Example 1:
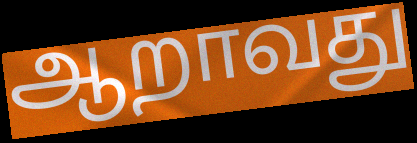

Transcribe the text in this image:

ஆறாவது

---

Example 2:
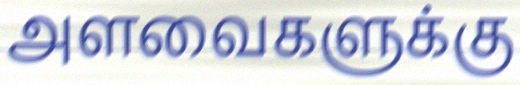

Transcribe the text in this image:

அளவைகளுக்கு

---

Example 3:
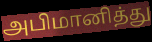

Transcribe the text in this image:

அபிமானித்து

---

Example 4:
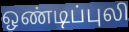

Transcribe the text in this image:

ஒண்டிப்புலி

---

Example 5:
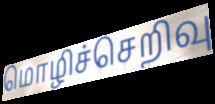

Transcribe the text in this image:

மொழிச்செறிவு